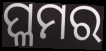
ପ୍ଳମର